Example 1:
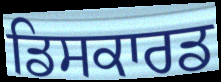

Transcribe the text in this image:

ਡਿਸਕਾਰਡ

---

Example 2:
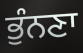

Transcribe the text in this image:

ਭੁੰਨਣਾ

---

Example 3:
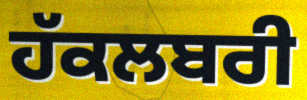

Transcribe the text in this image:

ਹੱਕਲਬਰੀ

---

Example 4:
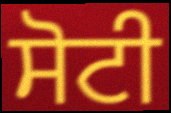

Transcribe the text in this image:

ਸੋਟੀ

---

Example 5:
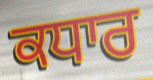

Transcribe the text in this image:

ਕਧਾਰ